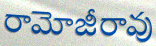
రామోజీరావు